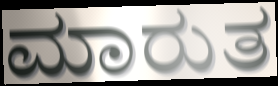
ಮಾರುತ